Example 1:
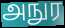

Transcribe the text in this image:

அநுர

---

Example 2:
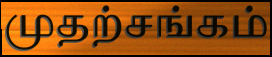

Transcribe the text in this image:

முதற்சங்கம்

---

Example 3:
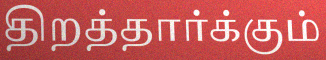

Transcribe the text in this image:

திறத்தார்க்கும்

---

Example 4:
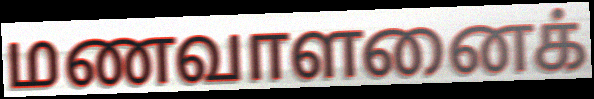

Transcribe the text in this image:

மணவாளனைக்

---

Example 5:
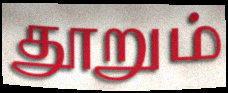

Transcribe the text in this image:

தூறும்